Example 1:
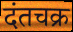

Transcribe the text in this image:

दंतचक्र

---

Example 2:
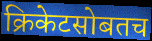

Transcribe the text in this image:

क्रिकेटसोबतच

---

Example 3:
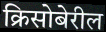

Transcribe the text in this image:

क्रिसोबेरील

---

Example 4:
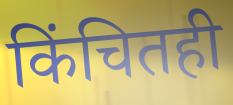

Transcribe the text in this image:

किंचितही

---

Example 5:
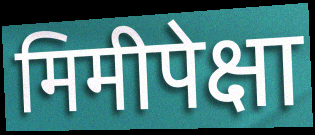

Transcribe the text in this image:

मिमीपेक्षा